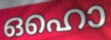
ഒഹൊ